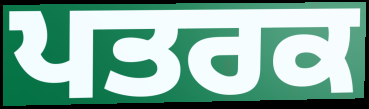
ਪਤਰਕ